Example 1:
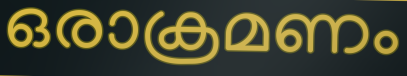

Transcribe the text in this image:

ഒരാക്രമണം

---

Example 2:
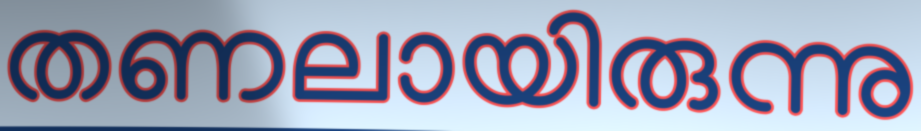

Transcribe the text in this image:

തണലായിരുന്നു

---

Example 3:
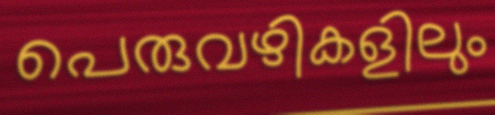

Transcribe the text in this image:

പെരുവഴികളിലും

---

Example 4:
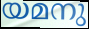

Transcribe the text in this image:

യമനു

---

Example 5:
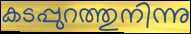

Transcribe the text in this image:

കടപ്പുറത്തുനിന്നു